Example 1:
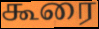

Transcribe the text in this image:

கூரை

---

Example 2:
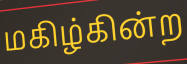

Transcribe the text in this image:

மகிழ்கின்ற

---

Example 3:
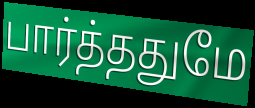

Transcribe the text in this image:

பார்த்ததுமே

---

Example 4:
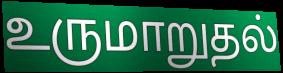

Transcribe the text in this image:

உருமாறுதல்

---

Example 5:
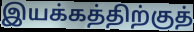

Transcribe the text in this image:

இயக்கத்திற்குத்